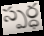
స్పర్ధ